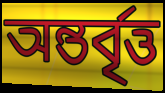
অন্তৰ্বৃত্ত